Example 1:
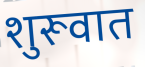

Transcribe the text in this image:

शुरूवात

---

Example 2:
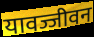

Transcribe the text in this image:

यावज्जीवन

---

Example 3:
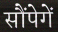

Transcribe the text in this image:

सौंपेगें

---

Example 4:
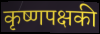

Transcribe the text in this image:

कृष्णपक्षकी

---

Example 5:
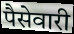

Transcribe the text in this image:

पैसेवारी